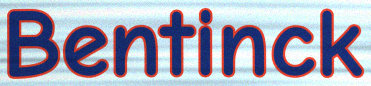
Bentinck